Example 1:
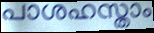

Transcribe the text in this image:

പാശഹസ്താം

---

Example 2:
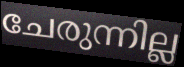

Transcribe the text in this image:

ചേരുന്നില്ല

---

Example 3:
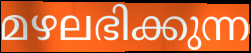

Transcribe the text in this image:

മഴലഭിക്കുന്ന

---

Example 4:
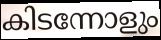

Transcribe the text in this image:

കിടന്നോളും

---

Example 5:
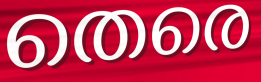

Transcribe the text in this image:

തെരെ